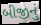
બીજીનું